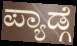
ಪ್ಯಾಡ್ಗೆ